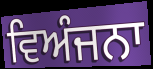
ਵਿਅੰਜਨਾ